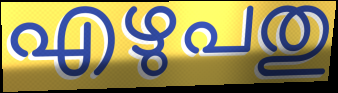
എഴുപതു